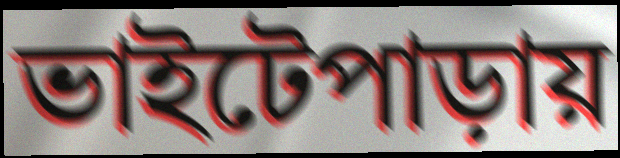
ভাইটেপাড়ায়